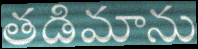
తడిమాను